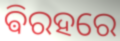
ଵିରହରେ